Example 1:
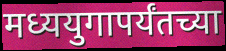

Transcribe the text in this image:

मध्ययुगापर्यंतच्या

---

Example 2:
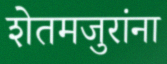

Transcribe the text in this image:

शेतमजुरांना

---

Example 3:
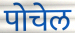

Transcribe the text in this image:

पोचेल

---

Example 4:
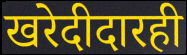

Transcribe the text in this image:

खरेदीदारही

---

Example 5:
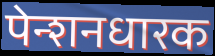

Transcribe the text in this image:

पेन्शनधारक